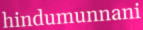
hindumunnani